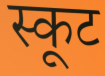
स्कूट